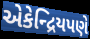
એકેન્દ્રિયપણે